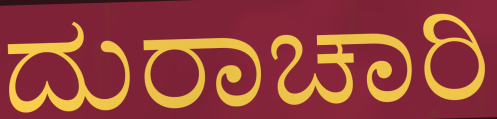
ದುರಾಚಾರಿ